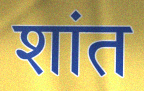
शांत